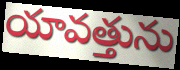
యావత్తును